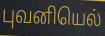
புவனியெல்